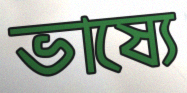
ভাষ্যে